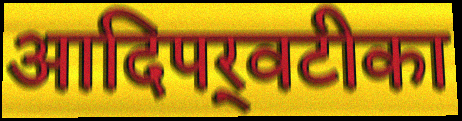
आदिपर्वटीका